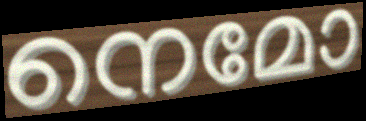
നെമോ